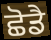
ਛੋਡੈ